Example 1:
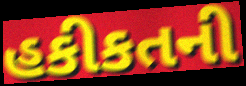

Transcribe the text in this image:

હકીકતની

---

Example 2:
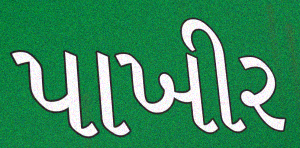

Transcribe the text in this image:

પાખીર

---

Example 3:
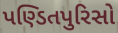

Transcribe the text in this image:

પણ્ડિતપુરિસો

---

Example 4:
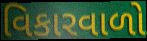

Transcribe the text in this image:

વિકારવાળો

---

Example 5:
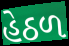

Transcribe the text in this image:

હેઠળ